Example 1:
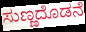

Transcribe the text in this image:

ಸುಣ್ಣದೊಡನೆ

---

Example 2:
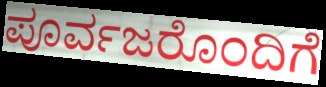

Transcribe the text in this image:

ಪೂರ್ವಜರೊಂದಿಗೆ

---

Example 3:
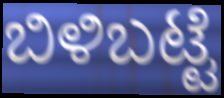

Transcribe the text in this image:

ಬಿಳಿಬಟ್ಟೆ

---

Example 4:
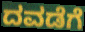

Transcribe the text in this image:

ದವಡೆಗೆ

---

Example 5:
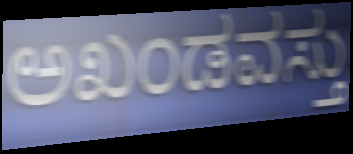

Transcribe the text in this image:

ಅಖಂಡವಸ್ತು